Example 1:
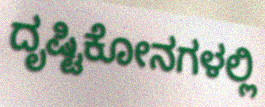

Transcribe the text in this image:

ದೃಷ್ಟಿಕೋನಗಳಲ್ಲಿ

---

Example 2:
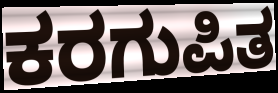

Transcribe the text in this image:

ಕರಗುಪಿತ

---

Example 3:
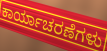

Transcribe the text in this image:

ಕಾರ್ಯಾಚರಣೆಗಳು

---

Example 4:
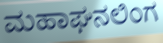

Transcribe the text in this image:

ಮಹಾಘನಲಿಂಗ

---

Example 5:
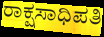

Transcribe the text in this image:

ರಾಕ್ಷಸಾಧಿಪತಿ